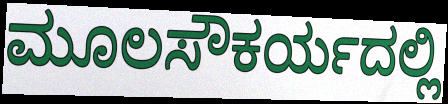
ಮೂಲಸೌಕರ್ಯದಲ್ಲಿ